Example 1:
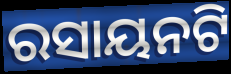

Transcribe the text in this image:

ରସାୟନଟି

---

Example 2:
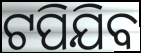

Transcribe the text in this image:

ଟପିଯିବ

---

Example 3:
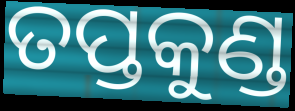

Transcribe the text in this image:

ତପ୍ତକୁଣ୍ଡ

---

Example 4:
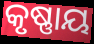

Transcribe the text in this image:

କୃଷ୍ଣାୟ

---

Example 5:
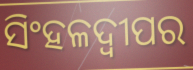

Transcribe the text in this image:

ସିଂହଳଦ୍ୱୀପର